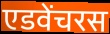
एडवेंचरस